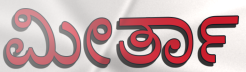
ಮೀರ್ತಾ